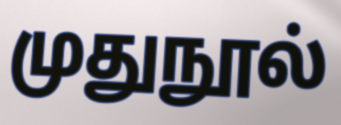
முதுநூல்